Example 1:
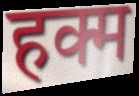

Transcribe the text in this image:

हक्म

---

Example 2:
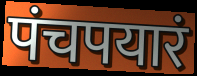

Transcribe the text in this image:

पंचपयारं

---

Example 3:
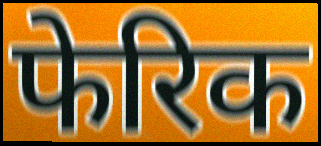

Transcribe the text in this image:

फेरिक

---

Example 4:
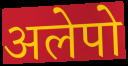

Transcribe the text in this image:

अलेपो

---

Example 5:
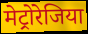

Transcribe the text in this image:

मेट्रोरेजिया